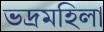
ভদ্ৰমহিলা